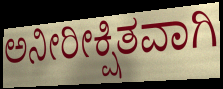
ಅನೀರೀಕ್ಷಿತವಾಗಿ